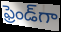
ఫ్రెండ్‌గా